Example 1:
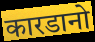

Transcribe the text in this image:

कारडानो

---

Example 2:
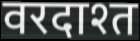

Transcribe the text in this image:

वरदाश्त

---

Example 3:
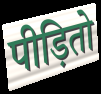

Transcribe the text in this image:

पीड़ितो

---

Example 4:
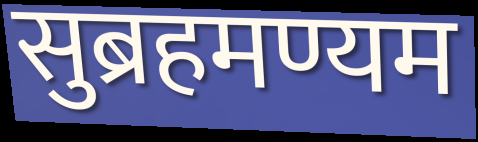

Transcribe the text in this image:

सुब्रहमण्यम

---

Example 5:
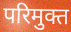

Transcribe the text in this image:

परिमुक्त